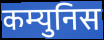
कम्युनिस